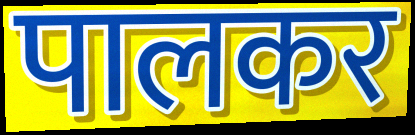
पालकर